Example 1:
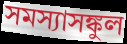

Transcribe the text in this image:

সমস্যাসঙ্কুল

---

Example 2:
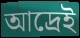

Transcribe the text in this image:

আদ্রেই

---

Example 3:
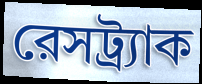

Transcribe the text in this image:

রেসট্র্যাক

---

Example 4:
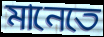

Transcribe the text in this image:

মানেতে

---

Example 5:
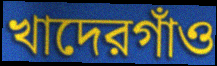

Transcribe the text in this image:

খাদেরগাঁও